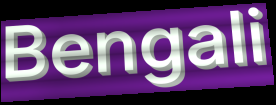
Bengali